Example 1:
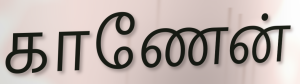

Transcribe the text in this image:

காணேன்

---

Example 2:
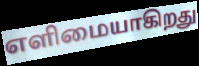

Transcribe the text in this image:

எளிமையாகிறது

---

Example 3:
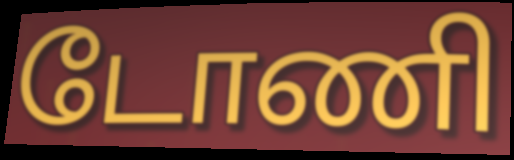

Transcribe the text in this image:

டோணி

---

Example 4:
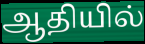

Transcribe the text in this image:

ஆதியில்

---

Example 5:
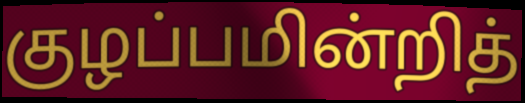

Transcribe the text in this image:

குழப்பமின்றித்